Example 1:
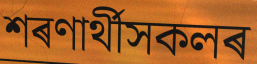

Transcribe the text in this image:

শৰণাৰ্থীসকলৰ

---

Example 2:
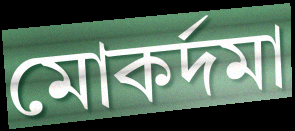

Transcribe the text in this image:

মোকৰ্দমা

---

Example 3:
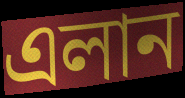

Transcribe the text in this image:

এলান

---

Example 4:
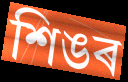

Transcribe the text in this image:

শিঙৰ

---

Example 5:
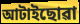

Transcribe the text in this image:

আটাইছোৱা